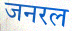
जनरल